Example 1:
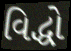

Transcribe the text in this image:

વિદ્ધો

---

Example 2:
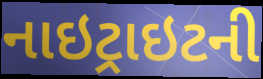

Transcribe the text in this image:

નાઇટ્રાઇટની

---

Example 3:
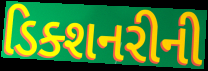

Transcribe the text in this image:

ડિક્શનરીની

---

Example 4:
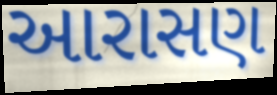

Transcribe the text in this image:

આરાસણ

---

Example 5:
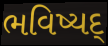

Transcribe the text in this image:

ભવિષ્યદ્